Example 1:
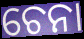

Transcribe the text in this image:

ଚେନା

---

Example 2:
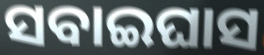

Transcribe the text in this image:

ସବାଇଘାସ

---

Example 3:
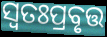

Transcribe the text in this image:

ସ୍ୱତଃପ୍ରବୃତ୍ତ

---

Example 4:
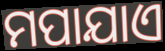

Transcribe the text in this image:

ମପାଯାଏ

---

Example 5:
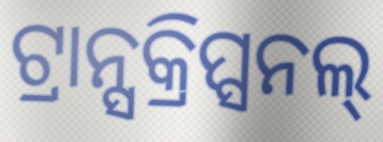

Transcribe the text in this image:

ଟ୍ରାନ୍ସକ୍ରିପ୍ସନଲ୍